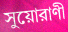
সুয়োরাণী